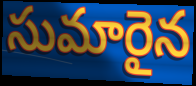
సుమారైన